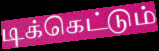
டிக்கெட்டும்